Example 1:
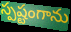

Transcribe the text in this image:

స్పష్టంగాను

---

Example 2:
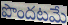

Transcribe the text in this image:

పొందటమే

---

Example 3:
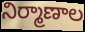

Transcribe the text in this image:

నిర్మాణాల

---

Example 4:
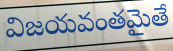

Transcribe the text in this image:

విజయవంతమైతే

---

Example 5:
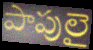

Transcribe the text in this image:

పాపులై